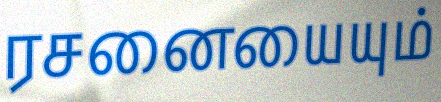
ரசனையையும்